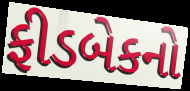
ફીડબેકનો